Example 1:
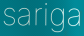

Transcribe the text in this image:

sariga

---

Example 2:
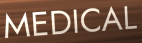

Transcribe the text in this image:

MEDICAL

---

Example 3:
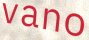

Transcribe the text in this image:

vano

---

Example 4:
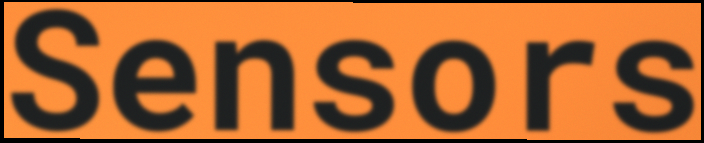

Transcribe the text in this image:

Sensors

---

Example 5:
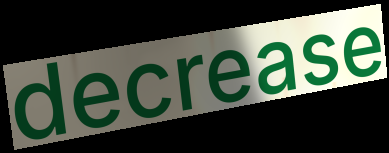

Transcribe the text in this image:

decrease